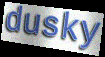
dusky